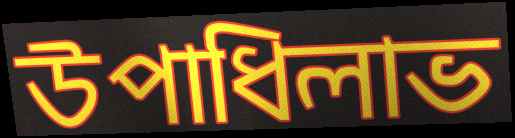
উপাধিলাভ